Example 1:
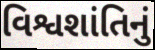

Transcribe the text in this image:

વિશ્વશાંતિનું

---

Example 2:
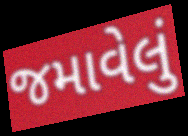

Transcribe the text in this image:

જમાવેલું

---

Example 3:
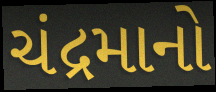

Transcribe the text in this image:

ચંદ્રમાનો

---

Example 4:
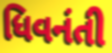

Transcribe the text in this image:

ધિવનંતી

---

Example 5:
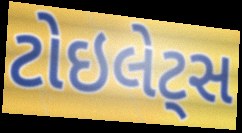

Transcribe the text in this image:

ટોઇલેટ્સ